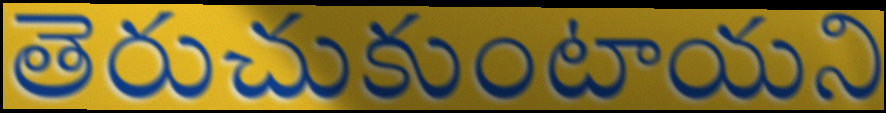
తెరుచుకుంటాయని